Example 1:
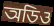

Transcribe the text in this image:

অডিও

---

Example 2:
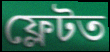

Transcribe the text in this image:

ফ্লেটত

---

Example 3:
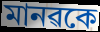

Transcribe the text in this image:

মানৱকে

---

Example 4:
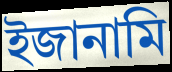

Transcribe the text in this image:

ইজানামি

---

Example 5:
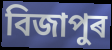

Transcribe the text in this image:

বিজাপুৰ